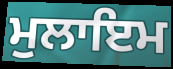
ਮੁਲਾਇਮ